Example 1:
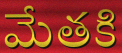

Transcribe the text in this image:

మేతకి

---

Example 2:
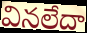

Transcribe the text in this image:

వినలేదా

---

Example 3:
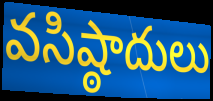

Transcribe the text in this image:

వసిష్ఠాదులు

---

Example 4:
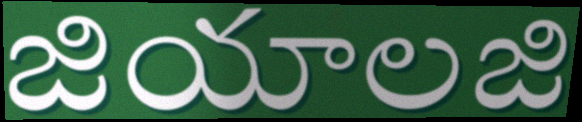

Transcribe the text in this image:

జియాలజి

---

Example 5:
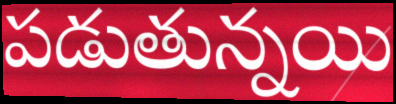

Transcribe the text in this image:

పడుతున్నయి